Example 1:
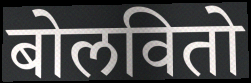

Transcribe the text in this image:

बोलवितो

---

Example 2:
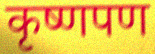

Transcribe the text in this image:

कृष्णपण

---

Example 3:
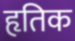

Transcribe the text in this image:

हृतिक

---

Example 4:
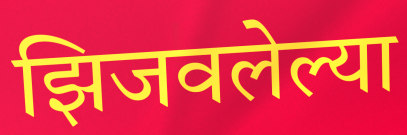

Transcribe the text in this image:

झिजवलेल्या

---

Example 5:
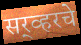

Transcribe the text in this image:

सर्व्हरचे